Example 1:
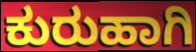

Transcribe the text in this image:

ಕುರುಹಾಗಿ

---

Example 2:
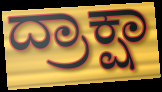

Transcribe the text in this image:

ದ್ರಾಕ್ಷಾ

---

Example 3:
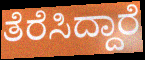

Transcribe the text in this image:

ತೆರೆಸಿದ್ದಾರೆ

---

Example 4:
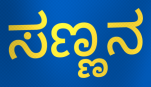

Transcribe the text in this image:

ಸಣ್ಣನ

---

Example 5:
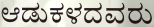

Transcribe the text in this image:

ಆಡುಕಳದವರು